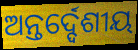
ଅନ୍ତର୍ଦ୍ଦେଶୀୟ